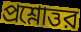
প্রশ্নোত্তর